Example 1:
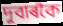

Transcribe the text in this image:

দুবাৰকৈ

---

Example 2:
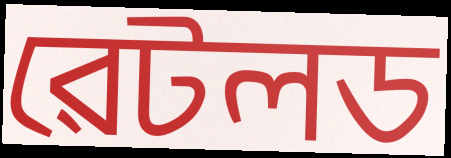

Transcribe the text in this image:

ৱেটলড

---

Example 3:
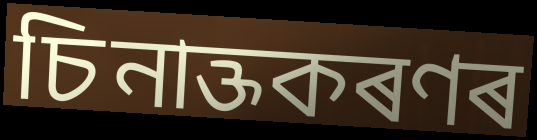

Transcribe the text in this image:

চিনাক্তকৰণৰ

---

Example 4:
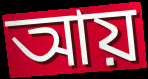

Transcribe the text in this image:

আয়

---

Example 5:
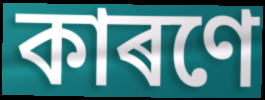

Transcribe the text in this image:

কাৰণে